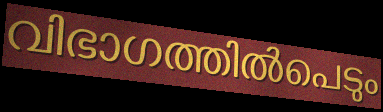
വിഭാഗത്തിൽപെടും